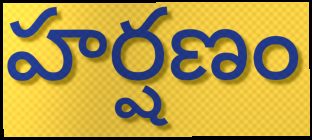
హర్షణం